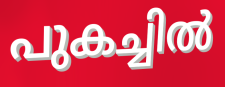
പുകച്ചിൽ